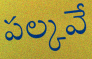
పల్కవే